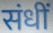
संधीं